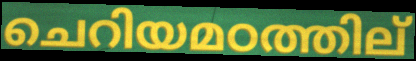
ചെറിയമഠത്തില്